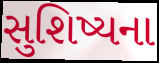
સુશિષ્યના